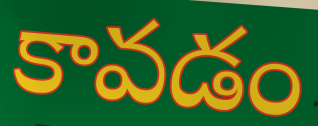
కావడం